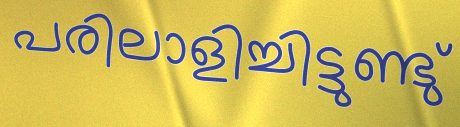
പരിലാളിച്ചിട്ടുണ്ടു്